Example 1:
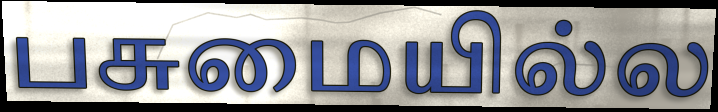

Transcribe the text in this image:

பசுமையில்ல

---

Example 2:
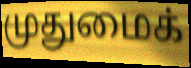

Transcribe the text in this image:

முதுமைக்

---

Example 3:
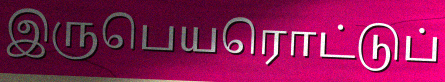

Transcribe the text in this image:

இருபெயரொட்டுப்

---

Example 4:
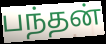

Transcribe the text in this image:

பந்தன்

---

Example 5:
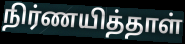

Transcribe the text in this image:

நிர்ணயித்தாள்